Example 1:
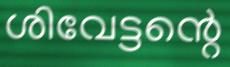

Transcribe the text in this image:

ശിവേട്ടന്റെ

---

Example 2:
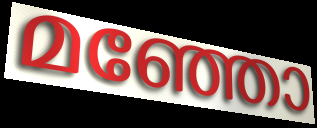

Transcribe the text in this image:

മഞ്ഞോ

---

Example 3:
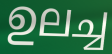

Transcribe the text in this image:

ഉലച്ച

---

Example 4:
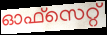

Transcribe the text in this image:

ഓഫ്സെറ്റ്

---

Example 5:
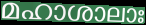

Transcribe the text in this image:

മഹാശാലാഃ